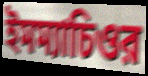
ইমম্যাচিওর